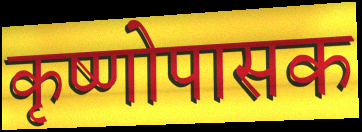
कृष्णोपासक